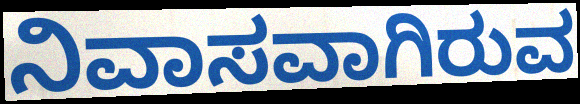
ನಿವಾಸವಾಗಿರುವ